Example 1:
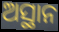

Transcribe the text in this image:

ଅସ୍ଥାନ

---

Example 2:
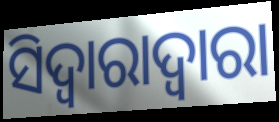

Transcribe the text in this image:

ସିଦ୍ୱାରାଦ୍ୱାରା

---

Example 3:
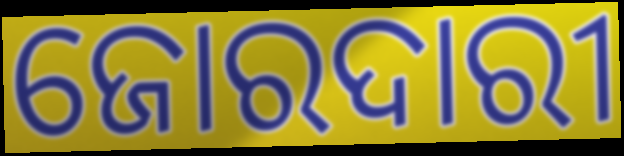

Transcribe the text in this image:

ଜୋରଦାରୀ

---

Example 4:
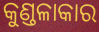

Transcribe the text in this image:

କୁଣ୍ଡଳାକାର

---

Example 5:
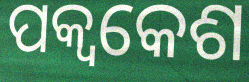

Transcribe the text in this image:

ପକ୍ଵକେଶ